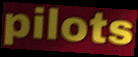
pilots